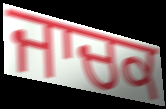
ਜਾਚਕ